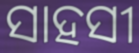
ସାହସୀ